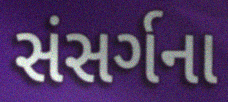
સંસર્ગના